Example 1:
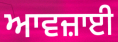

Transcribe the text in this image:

ਆਵਜ਼ਾਈ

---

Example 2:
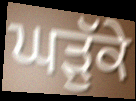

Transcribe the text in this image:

ਘੜੁੱਕੇ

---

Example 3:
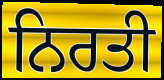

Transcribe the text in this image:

ਨਿਰਤੀ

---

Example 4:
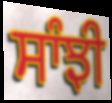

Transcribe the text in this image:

ਸਾੰਝੀ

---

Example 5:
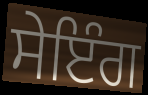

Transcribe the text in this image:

ਸੇਇੰਗ